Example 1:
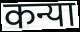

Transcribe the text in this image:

कन्या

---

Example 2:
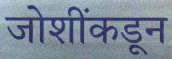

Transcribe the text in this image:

जोशींकडून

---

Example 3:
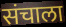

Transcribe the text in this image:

संचाला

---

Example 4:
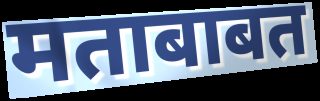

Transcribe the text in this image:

मताबाबत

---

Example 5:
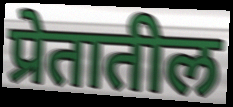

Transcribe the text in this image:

प्रेतातील